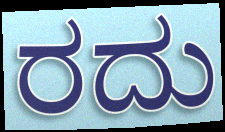
ರದು